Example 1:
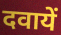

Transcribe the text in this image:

दवायें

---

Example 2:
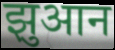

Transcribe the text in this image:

झुआन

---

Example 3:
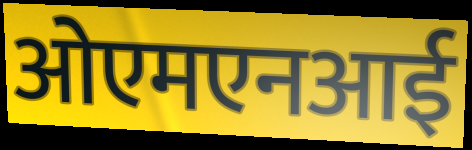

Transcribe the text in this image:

ओएमएनआई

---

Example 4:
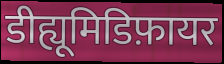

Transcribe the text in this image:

डीह्यूमिडिफ़ायर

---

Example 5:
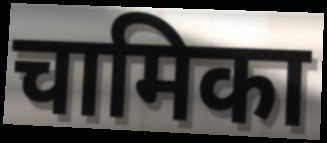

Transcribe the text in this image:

चामिका